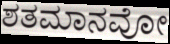
ಶತಮಾನವೋ